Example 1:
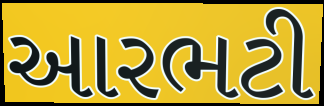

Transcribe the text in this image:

આરભટી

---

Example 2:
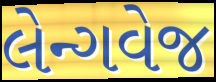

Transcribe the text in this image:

લેન્ગવેજ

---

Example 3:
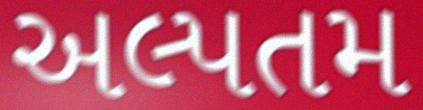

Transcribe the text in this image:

અલ્પતમ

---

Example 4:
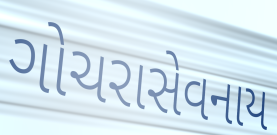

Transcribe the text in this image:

ગોચરાસેવનાય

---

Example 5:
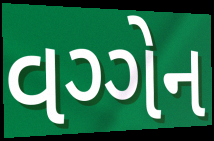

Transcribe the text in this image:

વગ્ગેન